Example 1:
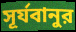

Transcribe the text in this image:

সূর্যবানুর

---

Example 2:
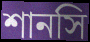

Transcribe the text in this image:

শানসি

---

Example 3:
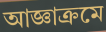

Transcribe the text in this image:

আজ্ঞাক্রমে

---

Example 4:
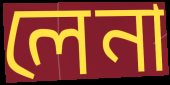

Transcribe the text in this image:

লেনা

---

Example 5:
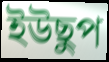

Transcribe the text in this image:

ইউছুপ